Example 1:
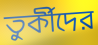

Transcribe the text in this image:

তুর্কীদের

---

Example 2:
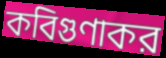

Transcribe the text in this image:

কবিগুণাকর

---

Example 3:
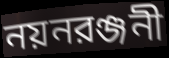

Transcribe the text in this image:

নয়নরঞ্জনী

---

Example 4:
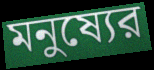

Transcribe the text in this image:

মনুষ্যের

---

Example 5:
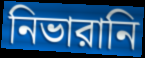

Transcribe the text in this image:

নিভারানি